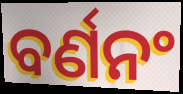
ବର୍ଣନଂ